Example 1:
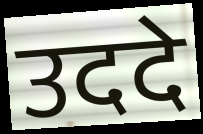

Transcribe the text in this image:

उददे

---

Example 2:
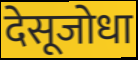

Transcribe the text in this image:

देसूजोधा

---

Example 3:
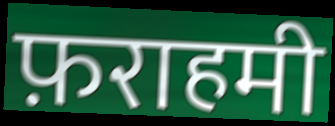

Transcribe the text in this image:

फ़राहमी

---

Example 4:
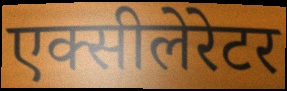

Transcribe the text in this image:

एक्सीलेरेटर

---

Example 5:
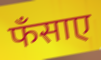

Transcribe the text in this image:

फँसाए